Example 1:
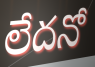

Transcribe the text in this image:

లేదనో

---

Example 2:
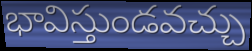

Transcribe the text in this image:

భావిస్తుండవచ్చు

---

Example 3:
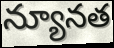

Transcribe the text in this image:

న్యూనత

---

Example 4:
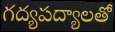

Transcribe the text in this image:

గద్యపద్యాలతో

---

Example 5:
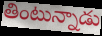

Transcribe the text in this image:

తింటున్నాడు